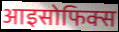
आइसोफिक्स